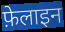
फ़ेलाइन